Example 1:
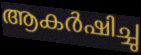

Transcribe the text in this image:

ആകർഷിച്ചു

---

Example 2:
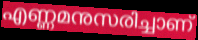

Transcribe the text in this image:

എണ്ണമനുസരിച്ചാണ്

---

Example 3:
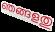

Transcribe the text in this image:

ഞങ്ങളതു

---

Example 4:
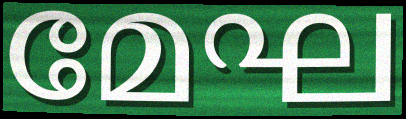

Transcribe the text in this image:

മേഘ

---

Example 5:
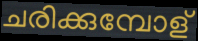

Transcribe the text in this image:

ചരിക്കുമ്പോള്